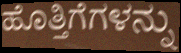
ಹೊತ್ತಿಗೆಗಳನ್ನು